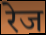
रेज